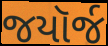
જયૉર્જ